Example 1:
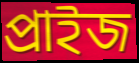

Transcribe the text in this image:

প্ৰাইজ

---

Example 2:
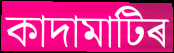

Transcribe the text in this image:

কাদামাটিৰ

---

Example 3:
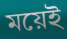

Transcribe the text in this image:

ময়েই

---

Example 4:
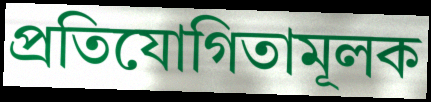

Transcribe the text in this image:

প্ৰতিযোগিতামূলক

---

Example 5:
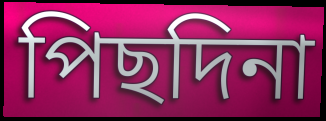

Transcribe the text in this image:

পিছদিনা